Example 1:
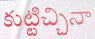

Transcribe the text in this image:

కుట్టిచ్చినా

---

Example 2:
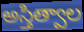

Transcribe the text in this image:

అస్తిత్వాల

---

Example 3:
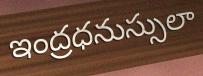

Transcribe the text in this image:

ఇంద్రధనుస్సులా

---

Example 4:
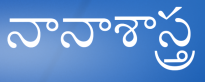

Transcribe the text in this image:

నానాశాస్త్ర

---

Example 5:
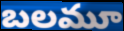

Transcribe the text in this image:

బలమూ